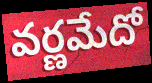
వర్ణమేదో